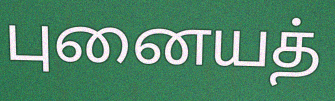
புனையத்